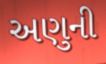
અણુની